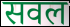
सवल